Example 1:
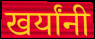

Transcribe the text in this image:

खर्यांनी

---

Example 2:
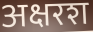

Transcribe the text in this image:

अक्षरश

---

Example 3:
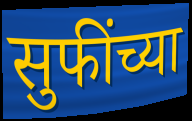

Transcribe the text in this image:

सुफींच्या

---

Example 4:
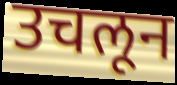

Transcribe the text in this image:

उचलून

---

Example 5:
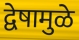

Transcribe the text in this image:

द्वेषामुळे